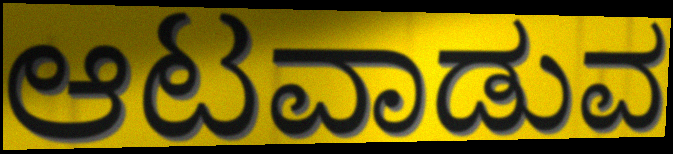
ಆಟವಾಡುವ